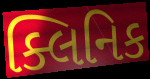
ક્લિનિક